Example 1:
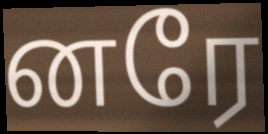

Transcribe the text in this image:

னரே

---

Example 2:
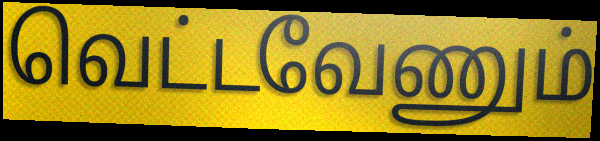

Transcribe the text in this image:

வெட்டவேணும்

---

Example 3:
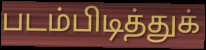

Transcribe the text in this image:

படம்பிடித்துக்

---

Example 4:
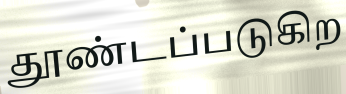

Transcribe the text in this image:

தூண்டப்படுகிற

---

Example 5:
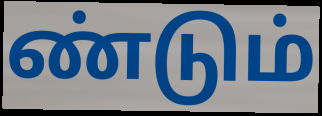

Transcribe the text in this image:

ண்டும்